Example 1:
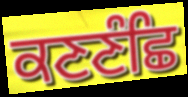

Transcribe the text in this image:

ਕਣਣੰਛਿ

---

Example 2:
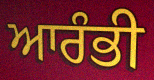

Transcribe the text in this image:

ਆਰੰਭੀ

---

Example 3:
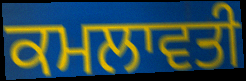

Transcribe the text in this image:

ਕਮਲਾਵਤੀ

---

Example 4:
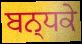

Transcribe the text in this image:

ਬਨ੍ਧਕੇ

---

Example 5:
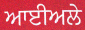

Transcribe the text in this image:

ਆਈਅਲੇ